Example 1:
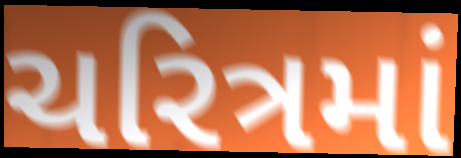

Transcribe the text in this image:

ચરિત્રમાં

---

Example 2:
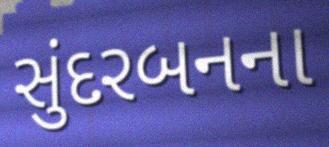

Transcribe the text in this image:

સુંદરબનના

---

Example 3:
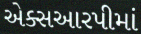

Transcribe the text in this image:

એક્સઆરપીમાં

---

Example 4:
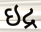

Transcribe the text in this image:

ઇદ્ર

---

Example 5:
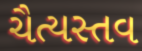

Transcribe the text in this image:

ચૈત્યસ્તવ